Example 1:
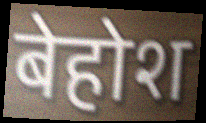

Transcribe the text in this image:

बेहोश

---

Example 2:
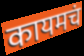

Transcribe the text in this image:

कायमचं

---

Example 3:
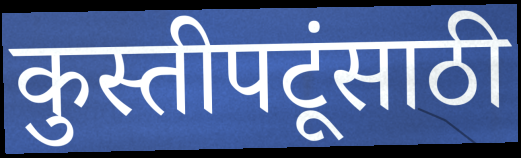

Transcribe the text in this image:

कुस्तीपटूंसाठी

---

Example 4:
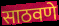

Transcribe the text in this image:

साठवणे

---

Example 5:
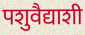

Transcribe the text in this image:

पशुवैद्याशी